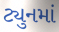
ટ્યુનમાં